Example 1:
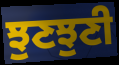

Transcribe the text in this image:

ਝੁਣਝੁਣੀ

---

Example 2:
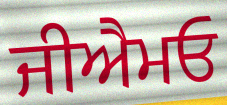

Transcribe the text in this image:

ਜੀਐਮਓ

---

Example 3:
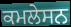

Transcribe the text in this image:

ਕਮਲੇਸਨ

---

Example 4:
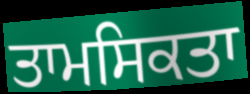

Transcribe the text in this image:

ਤਾਮਸਿਕਤਾ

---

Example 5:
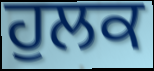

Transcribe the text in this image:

ਹੁਲਕ